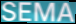
SEMA